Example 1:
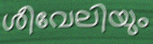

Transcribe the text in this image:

ശീവേലിയും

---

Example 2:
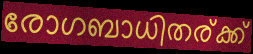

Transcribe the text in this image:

രോഗബാധിതര്ക്ക്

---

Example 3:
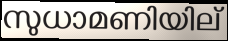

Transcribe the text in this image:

സുധാമണിയില്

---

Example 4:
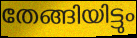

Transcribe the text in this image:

തേങ്ങിയിട്ടും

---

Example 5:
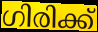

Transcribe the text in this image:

ഗിരിക്ക്